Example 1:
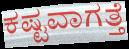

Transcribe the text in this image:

ಕಷ್ಟವಾಗತ್ತೆ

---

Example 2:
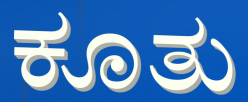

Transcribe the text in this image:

ಕೂತು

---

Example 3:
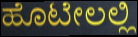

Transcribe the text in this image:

ಹೊಟೇಲಲ್ಲಿ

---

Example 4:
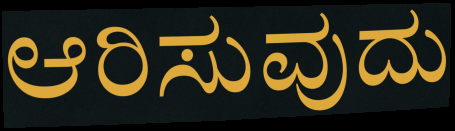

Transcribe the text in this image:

ಆರಿಸುವುದು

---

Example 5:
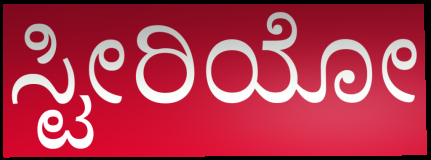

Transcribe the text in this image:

ಸ್ಟೀರಿಯೋ